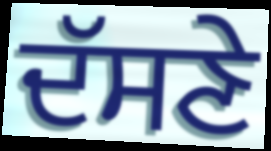
ਦੱਸਣੇ